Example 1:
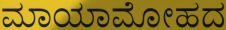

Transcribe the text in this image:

ಮಾಯಾಮೋಹದ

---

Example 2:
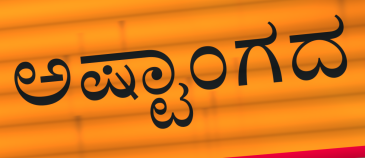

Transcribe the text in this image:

ಅಷ್ಟಾಂಗದ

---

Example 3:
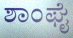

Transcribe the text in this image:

ಶಾಂಘೈ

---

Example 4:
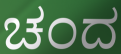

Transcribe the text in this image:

ಚಂದ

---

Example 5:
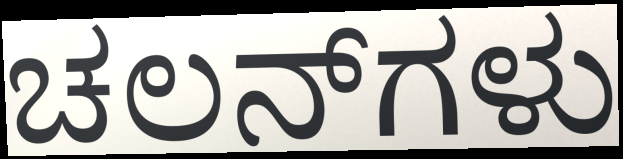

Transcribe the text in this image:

ಚಲನ್‌ಗಳು